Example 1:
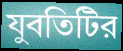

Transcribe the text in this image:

যুবতিটির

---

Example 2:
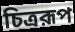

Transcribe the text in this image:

চিত্ররূপ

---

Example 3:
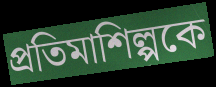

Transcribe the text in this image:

প্রতিমাশিল্পকে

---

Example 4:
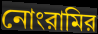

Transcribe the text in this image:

নোংরামির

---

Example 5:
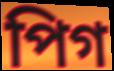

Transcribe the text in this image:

পিগ